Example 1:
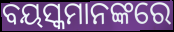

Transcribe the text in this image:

ବୟସ୍କମାନଙ୍କରେ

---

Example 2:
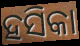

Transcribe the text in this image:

ହସିକା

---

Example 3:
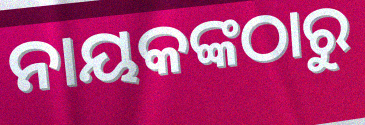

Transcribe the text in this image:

ନାୟକଙ୍କଠାରୁ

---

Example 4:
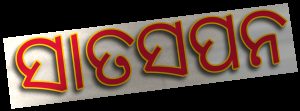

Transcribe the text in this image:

ସାତସପନ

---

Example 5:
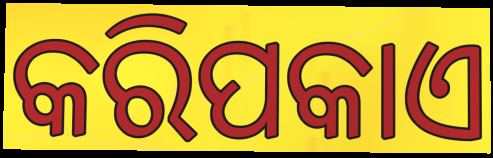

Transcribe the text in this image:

କରିପକାଏ